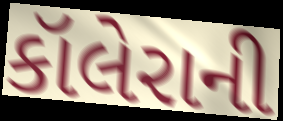
કૉલેરાની